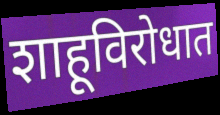
शाहूविरोधात